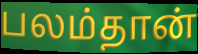
பலம்தான்